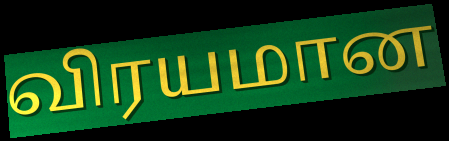
விரயமான